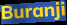
Buranji